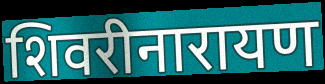
शिवरीनारायण